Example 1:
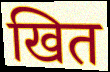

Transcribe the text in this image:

खित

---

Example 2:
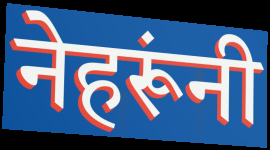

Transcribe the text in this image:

नेहरूंनी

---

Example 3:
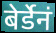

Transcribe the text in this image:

बेर्डेनं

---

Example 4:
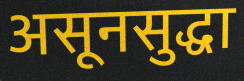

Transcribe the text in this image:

असूनसुद्धा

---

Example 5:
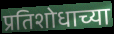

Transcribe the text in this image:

प्रतिशोधाच्या